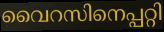
വൈറസിനെപ്പറ്റി